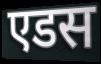
एडस